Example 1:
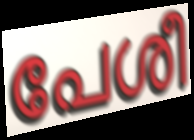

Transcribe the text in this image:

പേശീ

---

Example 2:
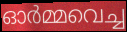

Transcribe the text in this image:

ഓർമ്മവെച്ച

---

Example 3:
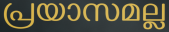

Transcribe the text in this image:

പ്രയാസമല്ല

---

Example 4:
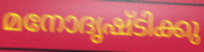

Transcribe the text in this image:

മനോദൃഷ്ടിക്കു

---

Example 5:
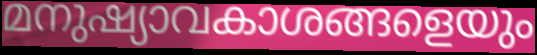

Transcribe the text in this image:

മനുഷ്യാവകാശങ്ങളെയും